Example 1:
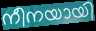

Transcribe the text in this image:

നീനയായി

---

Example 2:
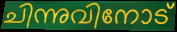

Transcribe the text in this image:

ചിന്നുവിനോട്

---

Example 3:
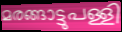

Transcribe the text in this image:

മരങ്ങാട്ടുപള്ളി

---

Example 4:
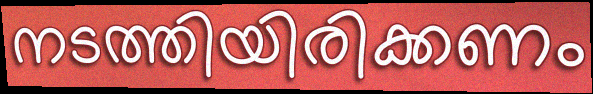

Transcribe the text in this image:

നടത്തിയിരിക്കണം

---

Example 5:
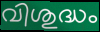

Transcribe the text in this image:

വിശുദ്ധം